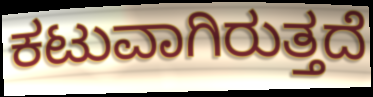
ಕಟುವಾಗಿರುತ್ತದೆ